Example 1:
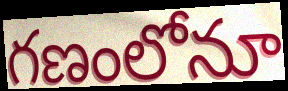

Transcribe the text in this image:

గణంలోనూ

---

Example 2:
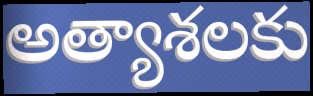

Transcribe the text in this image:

అత్యాశలకు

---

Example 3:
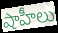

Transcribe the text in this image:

షాహీలు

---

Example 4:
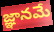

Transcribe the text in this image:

జ్ఞానమే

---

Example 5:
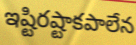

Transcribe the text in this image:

ఇష్టిరష్టాకపాలేన